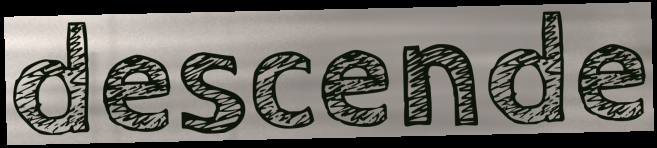
descende